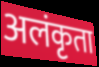
अलंकृता